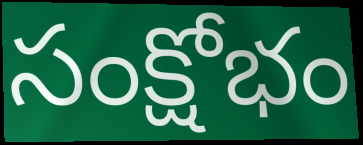
సంక్షోభం